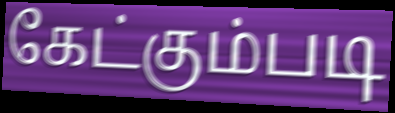
கேட்கும்படி